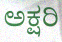
ಅಕ್ಷರಿ